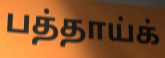
பத்தாய்க்